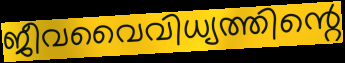
ജീവവൈവിധ്യത്തിന്റെ